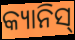
କ୍ୟାନିସ୍